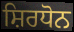
ਸ਼ਿਰਧੋਨ